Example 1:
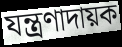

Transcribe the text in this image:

যন্ত্রণাদায়ক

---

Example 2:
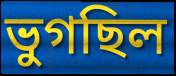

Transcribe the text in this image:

ভুগছিল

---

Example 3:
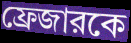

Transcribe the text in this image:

ফ্রেজারকে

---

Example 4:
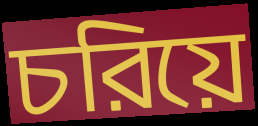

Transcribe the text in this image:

চরিয়ে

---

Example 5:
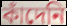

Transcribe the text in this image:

কাঁদেনি